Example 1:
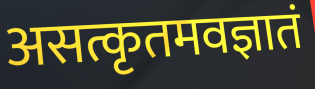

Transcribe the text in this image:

असत्कृतमवज्ञातं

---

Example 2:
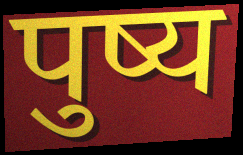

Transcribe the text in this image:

पुष्य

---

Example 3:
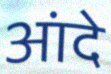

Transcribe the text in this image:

आंदे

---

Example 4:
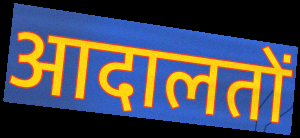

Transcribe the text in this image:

आदालतों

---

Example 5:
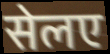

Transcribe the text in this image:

सेलए